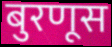
बुरणूस